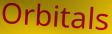
Orbitals